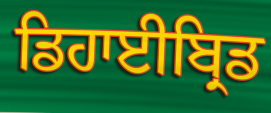
ਡਿਹਾਈਬ੍ਰਿਡ